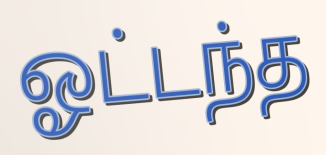
ஓட்டந்த